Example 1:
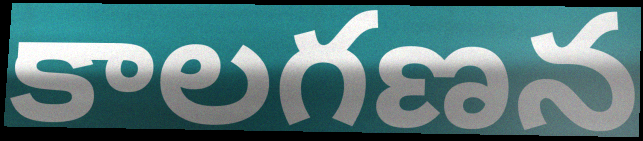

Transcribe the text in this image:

కాలగణన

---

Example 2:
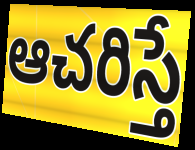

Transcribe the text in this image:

ఆచరిస్తే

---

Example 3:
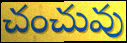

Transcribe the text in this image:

చంచువు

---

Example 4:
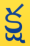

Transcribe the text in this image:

క్ష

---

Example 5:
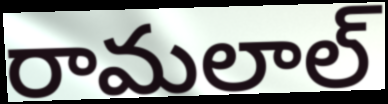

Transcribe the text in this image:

రామలాల్